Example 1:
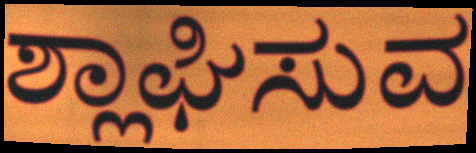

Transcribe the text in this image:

ಶ್ಲಾಘಿಸುವ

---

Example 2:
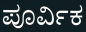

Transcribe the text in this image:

ಪೂರ್ವಿಕ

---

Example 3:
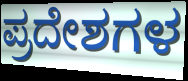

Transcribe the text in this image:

ಪ್ರದೇಶಗಳ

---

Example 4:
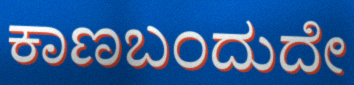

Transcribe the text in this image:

ಕಾಣಬಂದುದೇ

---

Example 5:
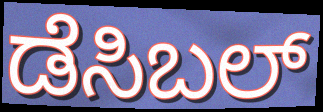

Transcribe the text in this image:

ಡೆಸಿಬಲ್